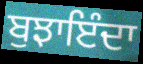
ਬੁਝਾਇੰਦਾ